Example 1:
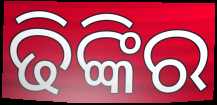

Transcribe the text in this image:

ଢିଙ୍କିର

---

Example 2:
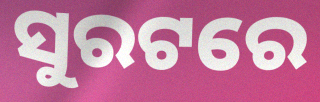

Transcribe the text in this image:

ସୁରଟରେ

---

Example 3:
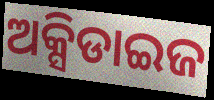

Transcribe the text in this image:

ଅକ୍ସିଡାଇଜ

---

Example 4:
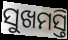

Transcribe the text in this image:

ସୁଖମସ୍ତି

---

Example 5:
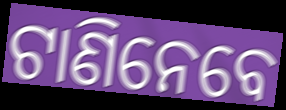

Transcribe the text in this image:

ଟାଣିନେବେ